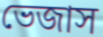
ভেজাস